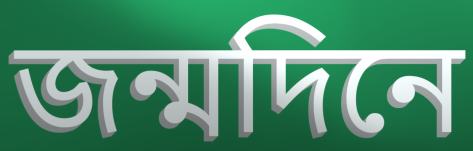
জন্মদিনে